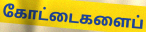
கோட்டைகளைப்